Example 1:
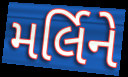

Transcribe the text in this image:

મર્લિને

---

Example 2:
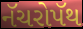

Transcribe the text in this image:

નૅચરોપૅથ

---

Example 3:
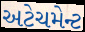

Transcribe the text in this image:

અટેચમેન્ટ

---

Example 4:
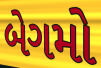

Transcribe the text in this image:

બેગમો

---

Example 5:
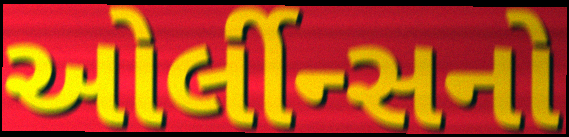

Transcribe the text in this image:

ઓર્લીન્સનો